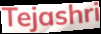
Tejashri